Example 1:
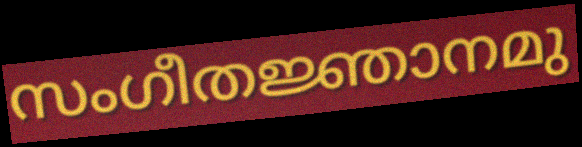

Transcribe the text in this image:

സംഗീതജ്ഞാനമു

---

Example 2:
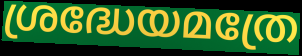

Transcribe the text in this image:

ശ്രദ്ധേയമത്രേ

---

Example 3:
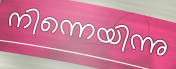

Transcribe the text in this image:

നിന്നെയിന്നു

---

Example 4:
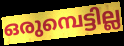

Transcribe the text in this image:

ഒരുമ്പെട്ടില്ല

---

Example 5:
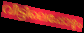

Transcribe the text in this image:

വീട്ടിലെപ്പോഴും